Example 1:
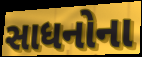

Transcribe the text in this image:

સાધનોના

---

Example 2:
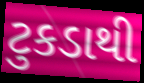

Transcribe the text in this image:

ટુકડાથી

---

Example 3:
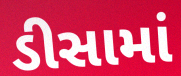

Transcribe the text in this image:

ડીસામાં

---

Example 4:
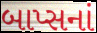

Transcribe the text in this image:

બાપ્સનાં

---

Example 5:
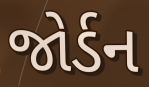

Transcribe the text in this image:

જોર્ડન